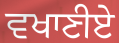
ਵਖਾਣੀਏ